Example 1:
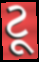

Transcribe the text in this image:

ટૂ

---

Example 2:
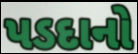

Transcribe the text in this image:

પડદાનો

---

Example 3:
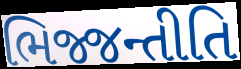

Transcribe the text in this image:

ભિજ્જન્તીતિ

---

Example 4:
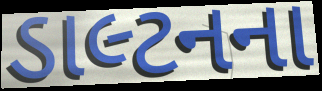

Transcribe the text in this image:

ડાલ્ટનના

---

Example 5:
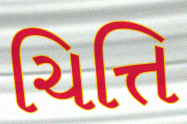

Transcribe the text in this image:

ચિત્તિ